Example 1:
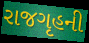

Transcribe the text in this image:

રાજગૃહની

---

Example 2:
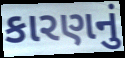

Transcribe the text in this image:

કારણનું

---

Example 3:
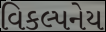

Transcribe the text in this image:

વિકલ્પનેય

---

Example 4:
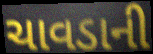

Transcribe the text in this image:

ચાવડાની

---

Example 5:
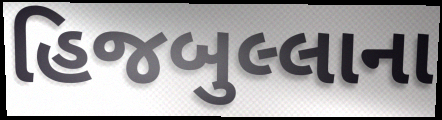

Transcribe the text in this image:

હિજબુલ્લાના